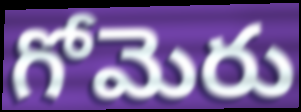
గోమెరు